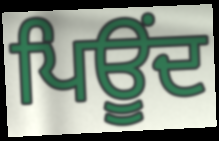
ਪਿਊਂਦ